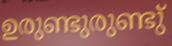
ഉരുണ്ടുരുണ്ടു്